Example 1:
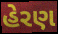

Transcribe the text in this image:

હેરણ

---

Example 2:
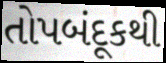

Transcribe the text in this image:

તોપબંદૂકથી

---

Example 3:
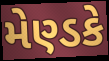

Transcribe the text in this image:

મેણ્ડકે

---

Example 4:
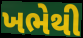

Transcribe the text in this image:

ખભેથી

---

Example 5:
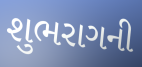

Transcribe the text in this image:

શુભરાગની